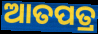
ଆତପତ୍ର